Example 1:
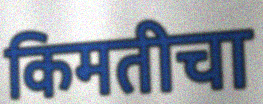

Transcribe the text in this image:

किमतीचा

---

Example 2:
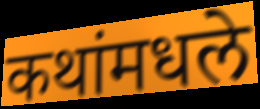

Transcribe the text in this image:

कथांमधले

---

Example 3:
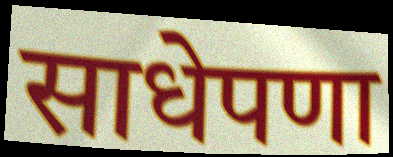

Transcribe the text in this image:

साधेपणा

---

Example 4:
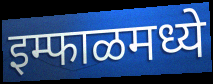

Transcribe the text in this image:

इम्फाळमध्ये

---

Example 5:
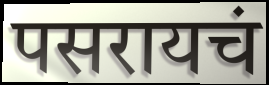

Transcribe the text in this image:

पसरायचं